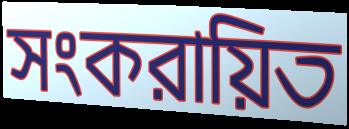
সংকরায়িত